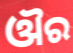
ଔର